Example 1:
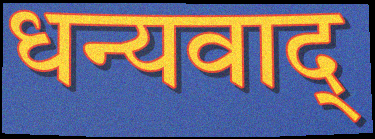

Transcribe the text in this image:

धन्यवाद्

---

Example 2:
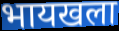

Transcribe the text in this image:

भायखला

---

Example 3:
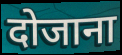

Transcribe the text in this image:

दोजाना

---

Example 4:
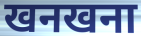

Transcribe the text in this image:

खनखना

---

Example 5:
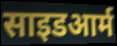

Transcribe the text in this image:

साइडआर्म